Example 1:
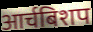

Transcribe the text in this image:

आर्चबिशप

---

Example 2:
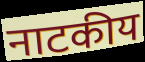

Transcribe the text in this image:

नाटकीय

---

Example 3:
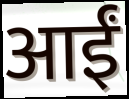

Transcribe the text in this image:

आईं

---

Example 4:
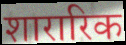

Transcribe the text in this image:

शारारिक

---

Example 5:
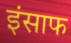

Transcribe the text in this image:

इंसाफ